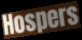
Hospers